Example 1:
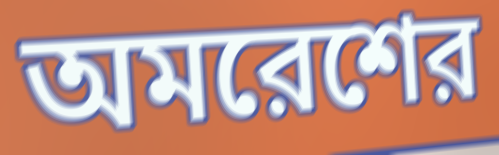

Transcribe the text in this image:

অমরেশের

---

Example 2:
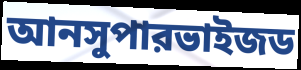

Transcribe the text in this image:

আনসুপারভাইজড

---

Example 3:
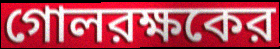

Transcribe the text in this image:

গোলরক্ষকের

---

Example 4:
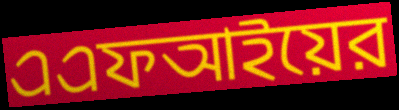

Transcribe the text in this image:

এএফআইয়ের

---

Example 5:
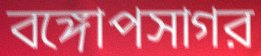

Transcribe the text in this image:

বঙ্গোপসাগর